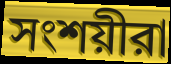
সংশয়ীরা